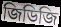
জিডিজি